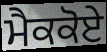
ਮੈਕਕੋਏ